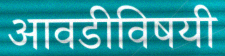
आवडीविषयी